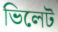
ভিলেট